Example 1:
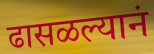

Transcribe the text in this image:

ढासळल्यानं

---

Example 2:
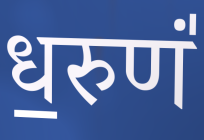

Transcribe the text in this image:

ध॒रुणं॑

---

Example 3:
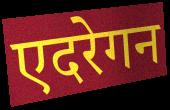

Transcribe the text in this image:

एदरेगन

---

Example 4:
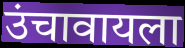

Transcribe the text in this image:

उंचावायला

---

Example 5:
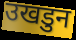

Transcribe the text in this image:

उखडुन